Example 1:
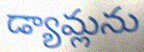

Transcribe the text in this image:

డ్యామ్లను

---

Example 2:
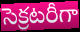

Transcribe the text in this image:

సెక్రటరీగా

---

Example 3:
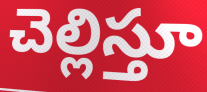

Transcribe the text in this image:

చెల్లిస్తూ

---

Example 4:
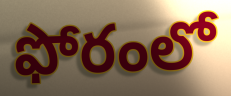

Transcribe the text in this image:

ఫోరంలో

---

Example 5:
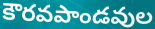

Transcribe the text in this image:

కౌరవపాండవుల